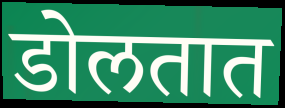
डोलतात